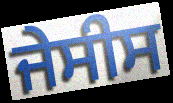
ਜੇਸੀਸ